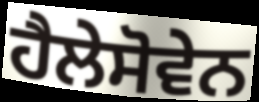
ਹੈਲੇਸੋਵੇਨ